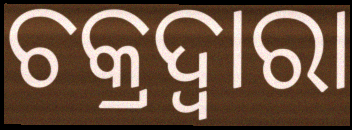
ଚକ୍ରଦ୍ୱାରା